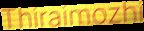
Thiraimozhi